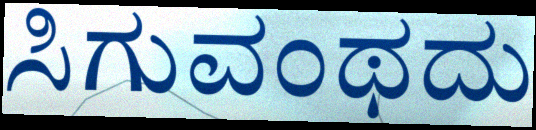
ಸಿಗುವಂಥದು